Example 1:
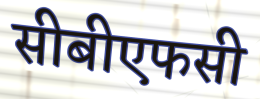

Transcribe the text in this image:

सीबीएफसी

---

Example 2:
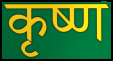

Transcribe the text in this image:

कृष्ण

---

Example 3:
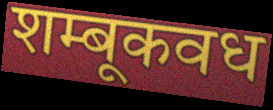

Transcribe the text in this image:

शम्बूकवध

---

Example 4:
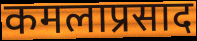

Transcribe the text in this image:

कमलाप्रसाद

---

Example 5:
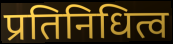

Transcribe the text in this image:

प्रतिनिधित्व